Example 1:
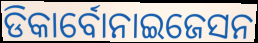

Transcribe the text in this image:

ଡିକାର୍ବୋନାଇଜେସନ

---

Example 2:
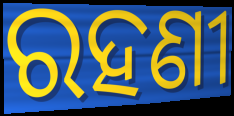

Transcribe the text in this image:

ରହଣୀ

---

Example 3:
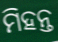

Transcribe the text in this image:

ମିହନ୍ତ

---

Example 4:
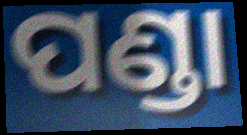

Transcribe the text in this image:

ପଣ୍ଡା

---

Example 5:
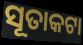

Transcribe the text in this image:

ସୂତାକଟା